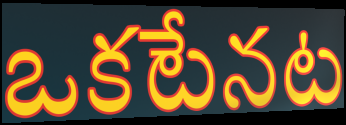
ఒకటేనట